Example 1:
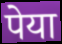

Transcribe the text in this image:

पेया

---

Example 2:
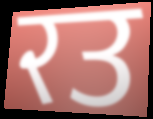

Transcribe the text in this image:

रउ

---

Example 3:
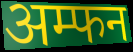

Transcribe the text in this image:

अम्फन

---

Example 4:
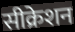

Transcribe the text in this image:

सीक्रेशन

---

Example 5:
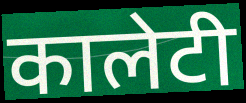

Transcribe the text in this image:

कालेटी